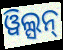
ୱିଲ୍ସନ୍